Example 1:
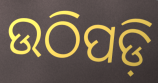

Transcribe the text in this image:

ଉଠିପଡ଼ି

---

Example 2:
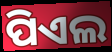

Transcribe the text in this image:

ପିଏଲ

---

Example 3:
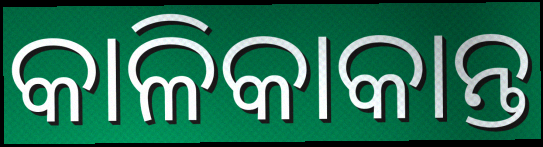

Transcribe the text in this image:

କାଳିକାକାନ୍ତ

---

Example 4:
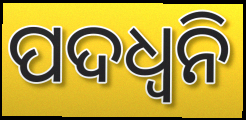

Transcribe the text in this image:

ପଦଧ୍ୱନି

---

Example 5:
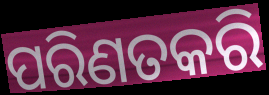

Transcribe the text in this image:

ପରିଣତକରି